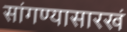
सांगण्यासारखं